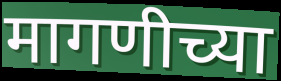
मागणीच्या